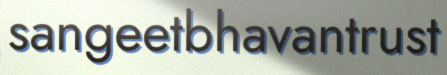
sangeetbhavantrust